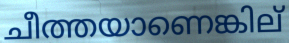
ചീത്തയാണെങ്കില്